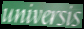
universis